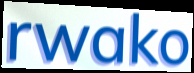
rwako